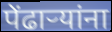
पेंढाऱ्यांना